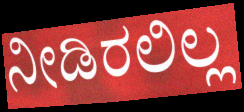
ನೀಡಿರಲಿಲ್ಲ